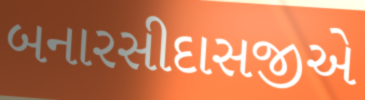
બનારસીદાસજીએ